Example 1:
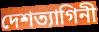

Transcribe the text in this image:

দেশত্যাগিনী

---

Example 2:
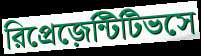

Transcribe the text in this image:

রিপ্রেজ়েন্টিটিভসে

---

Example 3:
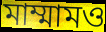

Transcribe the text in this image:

মাম্মামও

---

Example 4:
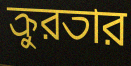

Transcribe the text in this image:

ক্রুরতার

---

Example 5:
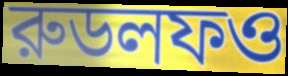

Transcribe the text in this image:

রুডলফও